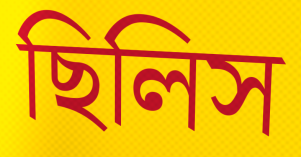
ছিলিস